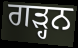
ਗੜ੍ਹਨ